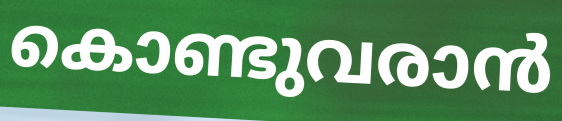
കൊണ്ടുവരാൻ